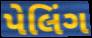
પેલિંગ